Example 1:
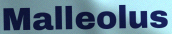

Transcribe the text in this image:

Malleolus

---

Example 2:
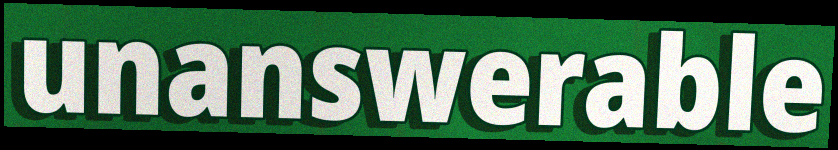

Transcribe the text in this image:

unanswerable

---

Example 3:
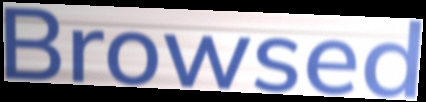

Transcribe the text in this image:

Browsed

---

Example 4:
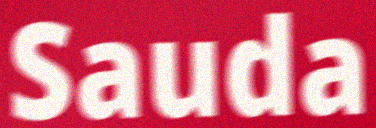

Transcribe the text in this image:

Sauda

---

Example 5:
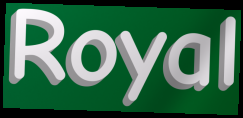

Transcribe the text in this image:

Royal